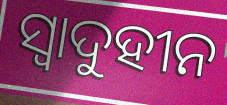
ସ୍ୱାଦୁହୀନ